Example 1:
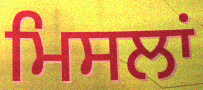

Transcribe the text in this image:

ਮਿਸਲਾਂ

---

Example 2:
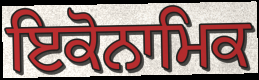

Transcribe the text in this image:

ਇਕੋਨਾਮਿਕ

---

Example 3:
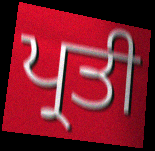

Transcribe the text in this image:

ਪ੍ਰਤੀ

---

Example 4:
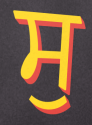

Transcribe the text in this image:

ਸੁ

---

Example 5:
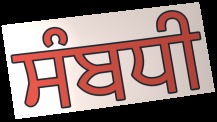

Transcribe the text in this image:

ਸੰਬਧੀ